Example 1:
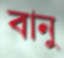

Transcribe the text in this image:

বানু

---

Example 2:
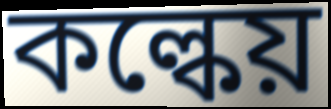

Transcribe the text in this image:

কল্কেয়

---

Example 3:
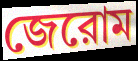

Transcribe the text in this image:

জেরোম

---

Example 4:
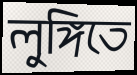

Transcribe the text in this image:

লুঙ্গিতে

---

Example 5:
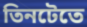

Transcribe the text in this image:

তিনটেতে